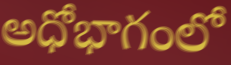
అధోభాగంలో